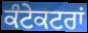
ਕੰਟੇਕਟਰਾਂ